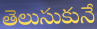
తెలుసుకునే